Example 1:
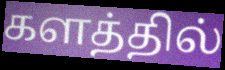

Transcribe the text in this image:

களத்தில்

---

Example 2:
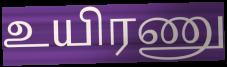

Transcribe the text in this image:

உயிரணு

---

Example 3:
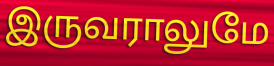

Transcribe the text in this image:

இருவராலுமே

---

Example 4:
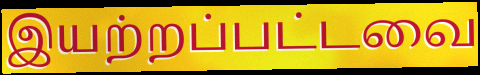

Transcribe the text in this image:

இயற்றப்பட்டவை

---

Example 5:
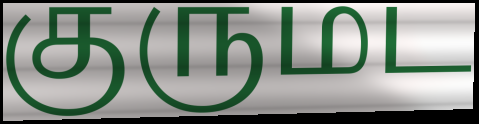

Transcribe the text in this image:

குருமட